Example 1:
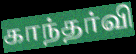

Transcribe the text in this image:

காந்தர்வி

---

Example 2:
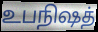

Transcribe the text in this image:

உபநிஷத்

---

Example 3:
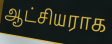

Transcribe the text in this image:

ஆட்சியராக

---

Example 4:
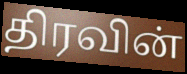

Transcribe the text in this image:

திரவின்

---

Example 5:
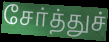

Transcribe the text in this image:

சேர்த்துச்